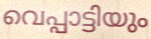
വെപ്പാട്ടിയും